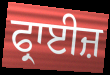
ਫ੍ਰਾਈਜ਼